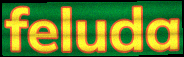
feluda